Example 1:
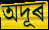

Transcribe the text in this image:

অদূৰ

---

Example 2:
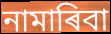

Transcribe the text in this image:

নামাৰিবা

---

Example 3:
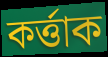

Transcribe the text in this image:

কৰ্ত্তাক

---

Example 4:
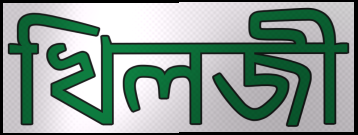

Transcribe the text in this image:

খিলজী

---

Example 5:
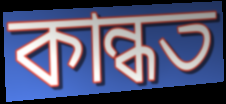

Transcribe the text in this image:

কান্ধত